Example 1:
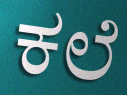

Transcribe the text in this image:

ಕಲೆ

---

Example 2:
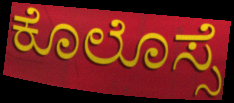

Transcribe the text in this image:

ಕೊಲೊಸ್ಸೆ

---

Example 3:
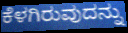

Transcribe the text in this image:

ಕೆಳಗಿರುವುದನ್ನು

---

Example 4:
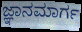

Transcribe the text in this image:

ಜ್ಞಾನಮಾರ್ಗ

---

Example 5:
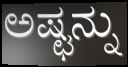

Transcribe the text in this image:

ಅಷ್ಟನ್ನು